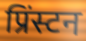
प्रिंस्टन